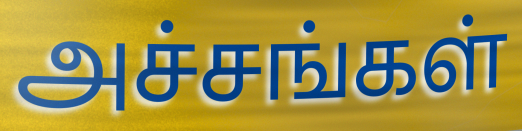
அச்சங்கள்